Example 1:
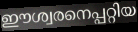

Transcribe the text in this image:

ഈശ്വരനെപ്പറ്റിയ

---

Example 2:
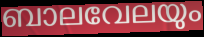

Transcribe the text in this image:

ബാലവേലയും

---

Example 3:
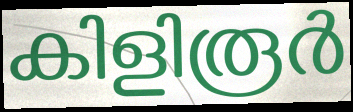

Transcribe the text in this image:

കിളിരൂർ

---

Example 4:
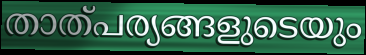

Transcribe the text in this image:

താത്പര്യങ്ങളുടെയും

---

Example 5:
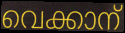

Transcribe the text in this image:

വെക്കാന്